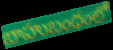
బాహుబంధంలో